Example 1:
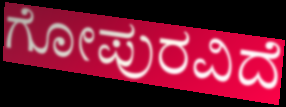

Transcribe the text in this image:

ಗೋಪುರವಿದೆ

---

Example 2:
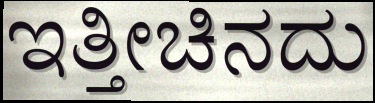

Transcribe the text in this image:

ಇತ್ತೀಚಿನದು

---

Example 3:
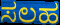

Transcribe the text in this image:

ಸಲಹ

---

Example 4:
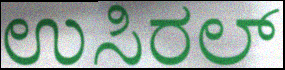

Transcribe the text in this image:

ಉಸಿರಲ್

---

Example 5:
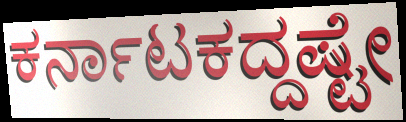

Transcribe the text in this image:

ಕರ್ನಾಟಕದ್ದಷ್ಟೇ